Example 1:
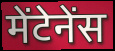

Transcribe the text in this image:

मेंटेनेंस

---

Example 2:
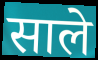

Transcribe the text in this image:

साले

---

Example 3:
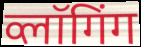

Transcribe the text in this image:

व्लॉगिंग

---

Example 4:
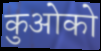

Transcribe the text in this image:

कुओको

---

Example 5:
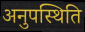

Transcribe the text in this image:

अनुपस्थिति